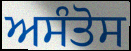
ਅਸੰਤੋਸ